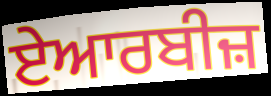
ਏਆਰਬੀਜ਼